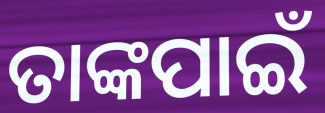
ତାଙ୍କପାଇଁ